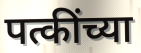
पत्कींच्या